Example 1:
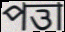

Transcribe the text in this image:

পত্তা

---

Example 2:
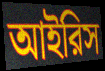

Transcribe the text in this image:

আইরিস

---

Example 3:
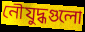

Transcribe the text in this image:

নৌযুদ্ধগুলো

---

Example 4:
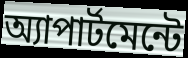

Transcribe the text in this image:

অ্যাপার্টমেন্টে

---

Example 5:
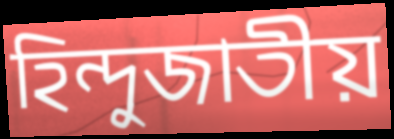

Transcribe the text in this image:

হিন্দুজাতীয়